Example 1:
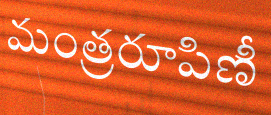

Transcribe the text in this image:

మంత్రరూపిణీ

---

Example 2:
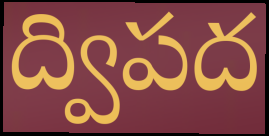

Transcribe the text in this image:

ద్విపద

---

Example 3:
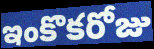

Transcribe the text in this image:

ఇంకొకరోజు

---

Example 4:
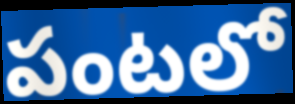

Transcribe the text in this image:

పంటలో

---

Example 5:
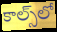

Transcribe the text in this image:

కాల్స్‌లో